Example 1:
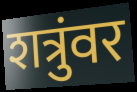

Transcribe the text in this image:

शत्रुंवर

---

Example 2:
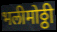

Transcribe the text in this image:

भलीमोठ्ठी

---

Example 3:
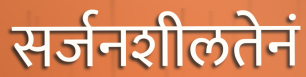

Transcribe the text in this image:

सर्जनशीलतेनं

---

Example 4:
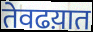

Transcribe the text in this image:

तेवढय़ात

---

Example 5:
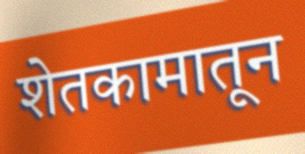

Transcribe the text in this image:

शेतकामातून